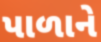
પાળાને